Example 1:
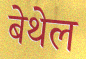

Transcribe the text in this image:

बेथेल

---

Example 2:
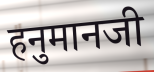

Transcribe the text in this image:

हनुमानजी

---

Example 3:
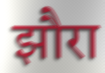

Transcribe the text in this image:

झौरा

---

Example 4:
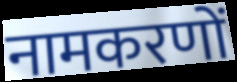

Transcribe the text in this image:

नामकरणों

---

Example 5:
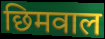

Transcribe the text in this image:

छिमवाल